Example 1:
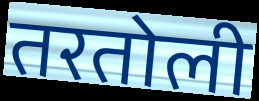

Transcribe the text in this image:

तरतोली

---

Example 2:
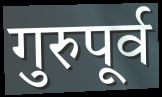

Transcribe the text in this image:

गुरुपूर्व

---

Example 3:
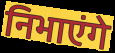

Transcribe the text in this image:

निभाएंगे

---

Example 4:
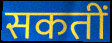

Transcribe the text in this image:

सकतीं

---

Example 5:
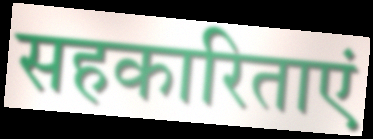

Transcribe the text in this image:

सहकारिताएं